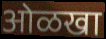
ओळखा